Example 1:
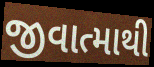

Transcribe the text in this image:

જીવાત્માથી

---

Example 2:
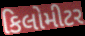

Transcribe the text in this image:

કિલોમીટર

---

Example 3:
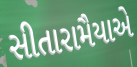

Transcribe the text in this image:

સીતારામૈયાએ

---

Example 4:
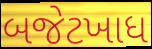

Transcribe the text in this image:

બજેટખાધ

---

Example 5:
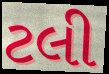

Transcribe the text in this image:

ટલી